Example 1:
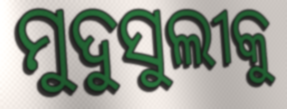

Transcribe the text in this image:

ମୁଦୁସୁଲୀକୁ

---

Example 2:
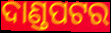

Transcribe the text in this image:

ଦାଣ୍ଡପଟର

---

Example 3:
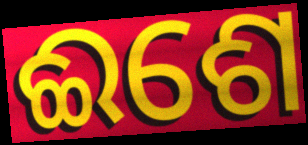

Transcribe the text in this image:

ଈଶେ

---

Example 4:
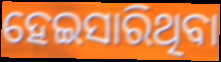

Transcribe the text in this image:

ହେଇସାରିଥିବା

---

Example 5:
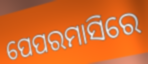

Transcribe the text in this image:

ପେପରମାସିରେ